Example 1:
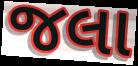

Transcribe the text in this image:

જલા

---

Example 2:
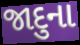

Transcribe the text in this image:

જાદુના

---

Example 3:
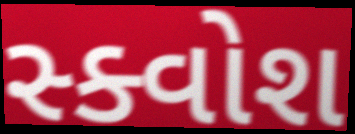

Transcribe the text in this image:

સ્ક્વોશ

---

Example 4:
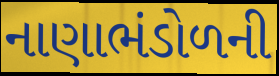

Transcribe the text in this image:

નાણાભંડોળની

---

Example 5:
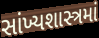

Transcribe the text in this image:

સાંખ્યશાસ્ત્રમાં